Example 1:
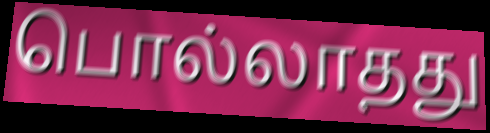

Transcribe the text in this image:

பொல்லாதது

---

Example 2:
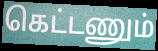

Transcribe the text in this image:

கெட்டணும்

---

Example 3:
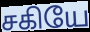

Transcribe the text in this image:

சகியே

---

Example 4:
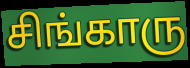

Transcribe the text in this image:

சிங்காரு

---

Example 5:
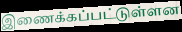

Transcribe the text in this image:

இணைக்கப்பட்டுள்ளன